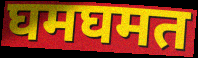
घमघमत